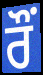
ਰੌਂ